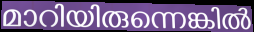
മാറിയിരുന്നെങ്കിൽ